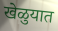
खेळुयात